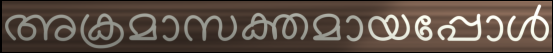
അക്രമാസക്തമായപ്പോൾ